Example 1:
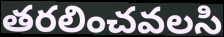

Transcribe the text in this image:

తరలించవలసి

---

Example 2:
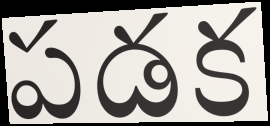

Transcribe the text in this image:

పడక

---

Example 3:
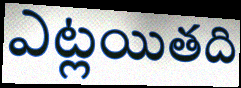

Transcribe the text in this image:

ఎట్లయితది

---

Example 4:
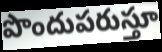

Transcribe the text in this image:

పొందుపరుస్తూ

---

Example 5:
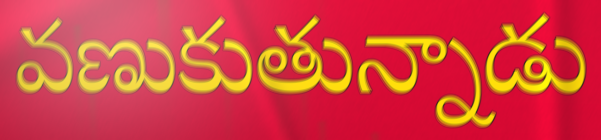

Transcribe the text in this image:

వణుకుతున్నాడు